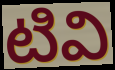
టివి